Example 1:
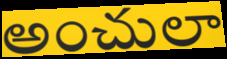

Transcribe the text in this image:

అంచులా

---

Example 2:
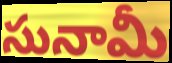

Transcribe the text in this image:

సునామీ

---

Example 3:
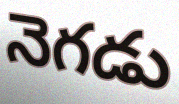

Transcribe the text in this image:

నెగడు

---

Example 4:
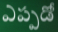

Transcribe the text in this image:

ఎప్పడో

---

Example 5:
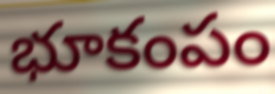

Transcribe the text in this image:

భూకంపం